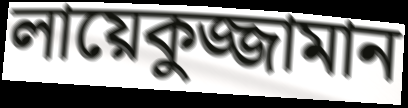
লায়েকুজ্জামান